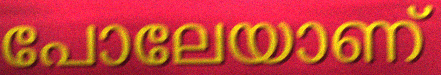
പോലേയാണ്